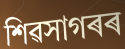
শিৱসাগৰৰ